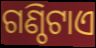
ଗଣ୍ଠିଟାଏ